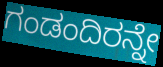
ಗಂಡಂದಿರನ್ನೇ